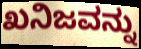
ಖನಿಜವನ್ನು